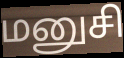
மனுசி